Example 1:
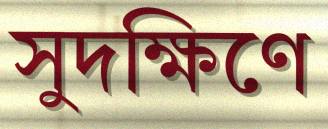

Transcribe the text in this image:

সুদক্ষিণে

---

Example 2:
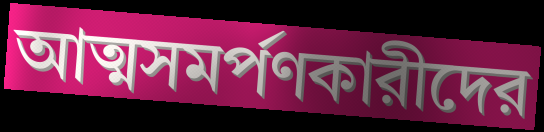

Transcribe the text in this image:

আত্মসমর্পণকারীদের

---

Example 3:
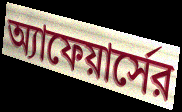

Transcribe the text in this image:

অ্যাফেয়ার্সের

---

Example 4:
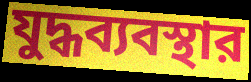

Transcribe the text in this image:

যুদ্ধব্যবস্থার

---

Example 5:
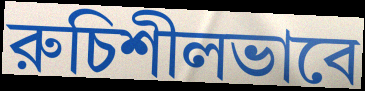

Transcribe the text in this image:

রুচিশীলভাবে